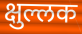
क्षुल्लक